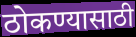
ठोकण्यासाठी